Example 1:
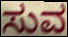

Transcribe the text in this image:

ಸುವ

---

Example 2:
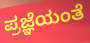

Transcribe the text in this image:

ಪ್ರಜ್ಞೆಯಂತೆ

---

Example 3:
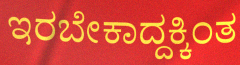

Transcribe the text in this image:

ಇರಬೇಕಾದ್ದಕ್ಕಿಂತ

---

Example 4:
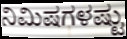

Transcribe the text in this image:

ನಿಮಿಷಗಳಷ್ಟು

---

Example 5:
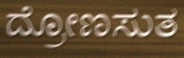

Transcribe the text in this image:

ದ್ರೋಣಸುತ